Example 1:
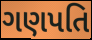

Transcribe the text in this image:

ગણપતિ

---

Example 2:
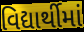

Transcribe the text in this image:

વિદ્યાર્થીમાં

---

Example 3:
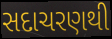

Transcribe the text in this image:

સદાચરણથી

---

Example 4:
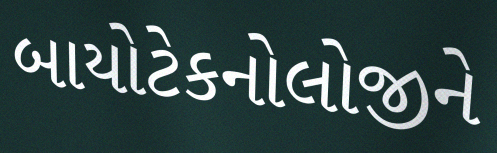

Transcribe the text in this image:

બાયોટેકનોલોજીને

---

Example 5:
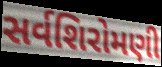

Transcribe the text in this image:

સર્વશિરોમણી